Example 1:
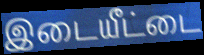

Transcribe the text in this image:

இடையீட்டை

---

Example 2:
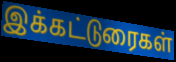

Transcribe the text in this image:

இக்கட்டுரைகள்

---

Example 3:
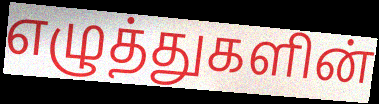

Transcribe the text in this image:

எழுத்துகளின்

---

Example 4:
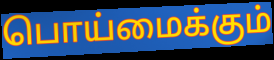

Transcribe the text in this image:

பொய்மைக்கும்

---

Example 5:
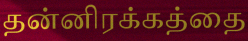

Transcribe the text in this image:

தன்னிரக்கத்தை